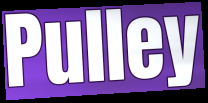
Pulley